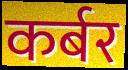
कर्बर